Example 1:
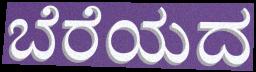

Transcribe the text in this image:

ಬೆರೆಯದ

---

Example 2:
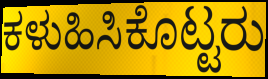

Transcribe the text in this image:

ಕಳುಹಿಸಿಕೊಟ್ಟರು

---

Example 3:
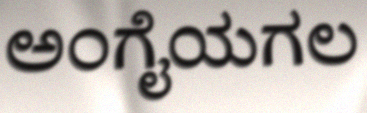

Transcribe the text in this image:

ಅಂಗೈಯಗಲ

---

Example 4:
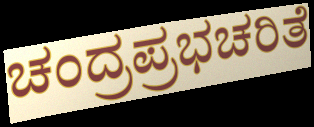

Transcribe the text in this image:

ಚಂದ್ರಪ್ರಭಚರಿತೆ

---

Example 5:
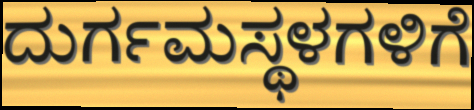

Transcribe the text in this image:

ದುರ್ಗಮಸ್ಥಳಗಳಿಗೆ